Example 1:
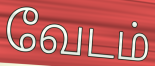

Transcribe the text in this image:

வேடம்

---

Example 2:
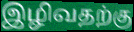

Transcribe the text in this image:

இழிவதற்கு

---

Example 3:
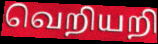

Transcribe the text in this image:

வெறியறி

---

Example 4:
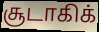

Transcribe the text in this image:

சூடாகிக்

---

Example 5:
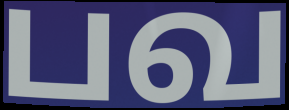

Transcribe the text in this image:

பவ